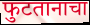
फुटतानाचा